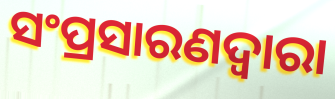
ସଂପ୍ରସାରଣଦ୍ଵାରା